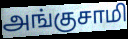
அங்குசாமி